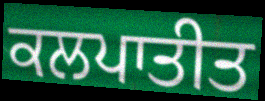
ਕਲਪਾਤੀਤ